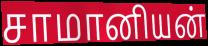
சாமானியன்